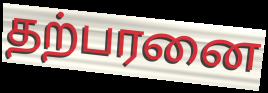
தற்பரனை